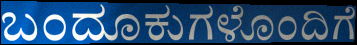
ಬಂದೂಕುಗಳೊಂದಿಗೆ